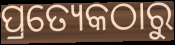
ପ୍ରତ୍ୟେକଠାରୁ